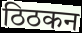
ठिठकन